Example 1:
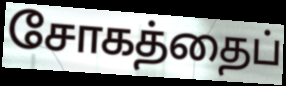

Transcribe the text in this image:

சோகத்தைப்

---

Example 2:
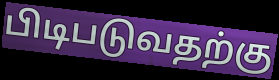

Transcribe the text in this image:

பிடிபடுவதற்கு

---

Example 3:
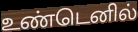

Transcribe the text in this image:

உண்டெனில்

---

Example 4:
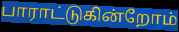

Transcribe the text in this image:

பாராட்டுகின்றோம்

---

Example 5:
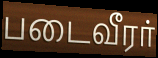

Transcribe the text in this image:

படைவீரர்